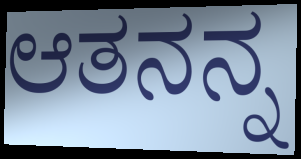
ಆತನನ್ನ